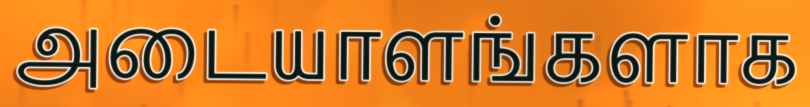
அடையாளங்களாக